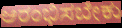
ಆರಂಭಿಸಬೇಕು